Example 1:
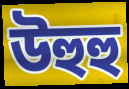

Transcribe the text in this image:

উহুহু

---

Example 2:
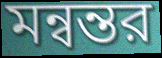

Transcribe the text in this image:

মন্বন্তর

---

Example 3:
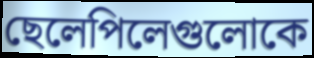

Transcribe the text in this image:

ছেলেপিলেগুলোকে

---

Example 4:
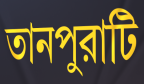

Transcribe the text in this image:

তানপুরাটি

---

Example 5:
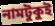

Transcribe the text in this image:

নামটুকুই